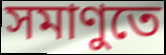
সমাণুতে